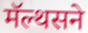
मॅल्थसने